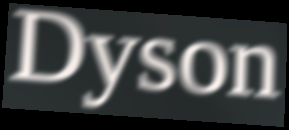
Dyson